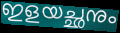
ഇളയച്ഛനും